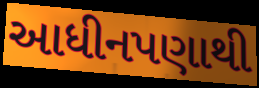
આધીનપણાથી